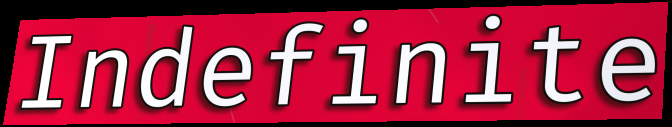
Indefinite